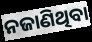
ନଜାଣିଥିବା